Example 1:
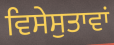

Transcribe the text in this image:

ਵਿਸੇਸੁਤਾਵਾਂ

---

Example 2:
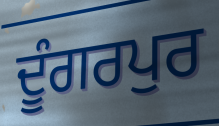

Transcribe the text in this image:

ਦੂੰਗਰਪੁਰ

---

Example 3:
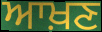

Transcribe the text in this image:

ਆਖ਼ਣ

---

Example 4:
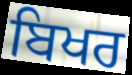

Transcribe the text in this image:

ਬਿਖਰ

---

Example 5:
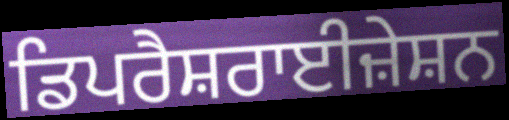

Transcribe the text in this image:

ਡਿਪਰੈਸ਼ਰਾਈਜ਼ੇਸ਼ਨ